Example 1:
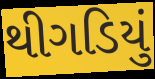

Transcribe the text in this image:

થીગડિયું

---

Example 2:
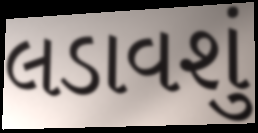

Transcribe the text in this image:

લડાવશું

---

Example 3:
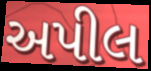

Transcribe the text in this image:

અપીલ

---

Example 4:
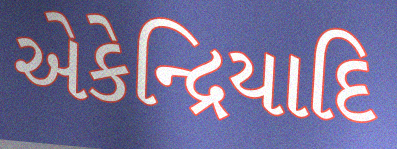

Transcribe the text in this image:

એકેન્દ્રિયાદિ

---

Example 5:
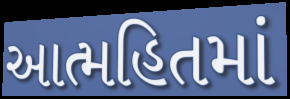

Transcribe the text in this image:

આત્મહિતમાં